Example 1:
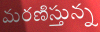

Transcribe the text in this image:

మరణిస్తున్న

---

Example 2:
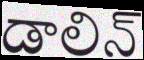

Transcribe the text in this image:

డాలిన్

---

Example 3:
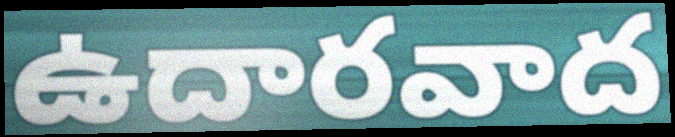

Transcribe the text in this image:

ఉదారవాద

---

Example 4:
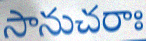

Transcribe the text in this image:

సానుచరాః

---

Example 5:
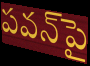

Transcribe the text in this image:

పవన్‌పై